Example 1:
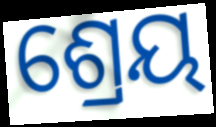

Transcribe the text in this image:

ଶ୍ରେୟ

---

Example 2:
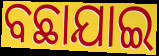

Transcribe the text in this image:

ବଛାଯାଇ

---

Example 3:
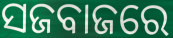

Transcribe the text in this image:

ସଜବାଜରେ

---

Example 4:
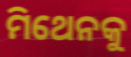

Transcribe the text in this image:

ମିଥେନକୁ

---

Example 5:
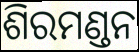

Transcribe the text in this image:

ଶିରମଣ୍ଡନ